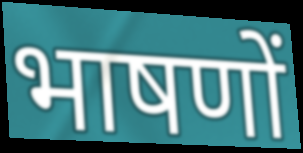
भाषणों